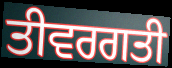
ਤੀਵਰਗਤੀ